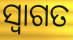
ସ୍ବାଗତ